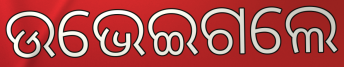
ଉଭେଇଗଲେ